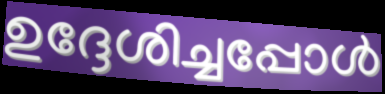
ഉദ്ദേശിച്ചപ്പോൾ